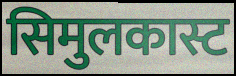
सिमुलकास्ट